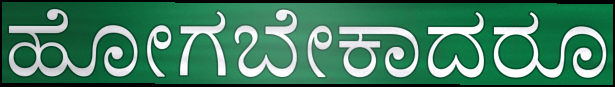
ಹೋಗಬೇಕಾದರೂ